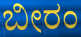
ಬೀರಂ